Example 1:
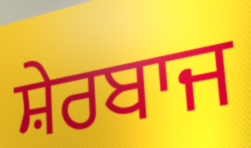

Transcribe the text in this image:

ਸ਼ੇਰਬਾਜ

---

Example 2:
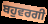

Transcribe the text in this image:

ਬਹੁਵਰਗੀ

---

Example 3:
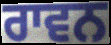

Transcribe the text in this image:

ਰਾਵਨ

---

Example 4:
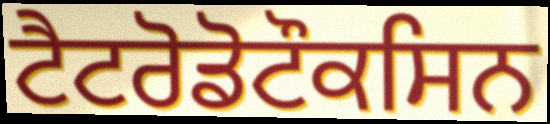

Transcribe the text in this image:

ਟੈਟਰੋਡੋਟੌਕਸਿਨ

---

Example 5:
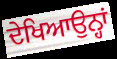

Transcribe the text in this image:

ਦੇਖਿਆਉਨ੍ਹਾਂ